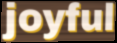
joyful